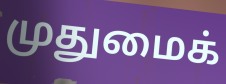
முதுமைக்